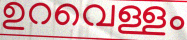
ഉറവെള്ളം